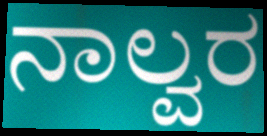
ನಾಲ್ವರ